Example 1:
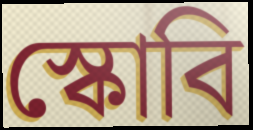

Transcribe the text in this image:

স্কোবি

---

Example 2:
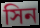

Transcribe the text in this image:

সিন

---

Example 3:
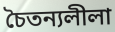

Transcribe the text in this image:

চৈতন্যলীলা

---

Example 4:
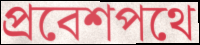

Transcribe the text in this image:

প্রবেশপথে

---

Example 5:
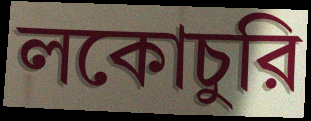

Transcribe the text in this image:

লকোচুরি